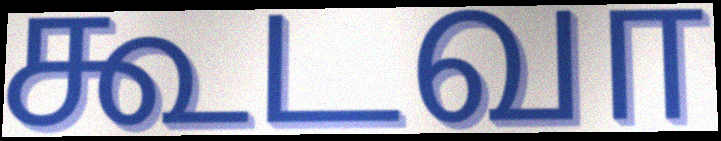
கூடவா